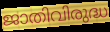
ജാതിവിരുദ്ധ